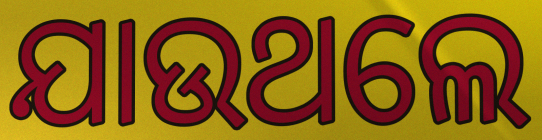
ଯାଉଥଲେ